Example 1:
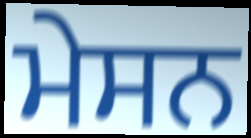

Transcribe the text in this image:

ਮੇਸਨ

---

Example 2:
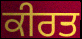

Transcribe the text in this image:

ਕੀਰਤ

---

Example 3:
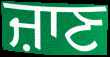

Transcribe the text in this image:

ਜ਼ਾਣ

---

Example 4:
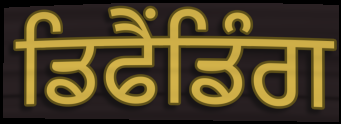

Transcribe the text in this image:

ਡਿਫੈਂਡਿੰਗ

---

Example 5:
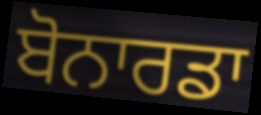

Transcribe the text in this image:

ਬੋਨਾਰਡਾ